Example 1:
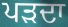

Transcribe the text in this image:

ਪੜਦਾ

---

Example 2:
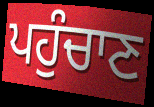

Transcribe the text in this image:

ਪਹੁੰਚਾਣ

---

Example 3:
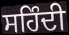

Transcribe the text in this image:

ਸਹਿੰਦੀ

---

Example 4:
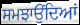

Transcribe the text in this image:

ਸਮਝਾਉਂਦਿਆਂ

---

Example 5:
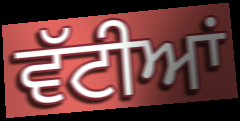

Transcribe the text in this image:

ਵੱਟੀਆਂ